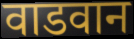
वाडवान